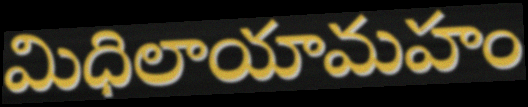
మిధిలాయామహం